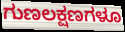
ಗುಣಲಕ್ಷಣಗಳೂ